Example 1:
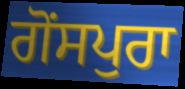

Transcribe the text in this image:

ਗੋਂਸਪੁਰਾ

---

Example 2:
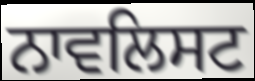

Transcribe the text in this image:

ਨਾਵਲਿਸਟ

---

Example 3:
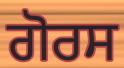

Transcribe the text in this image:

ਗੋਰਸ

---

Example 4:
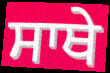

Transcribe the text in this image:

ਸਾਥੇ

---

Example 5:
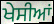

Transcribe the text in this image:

ਖੇਸੀਆਂ